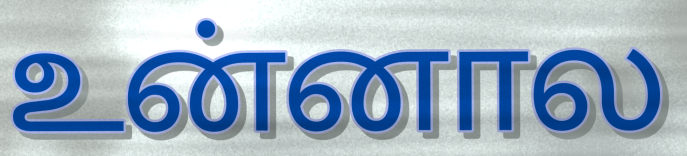
உன்னால